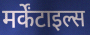
मर्केंटाइल्स